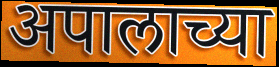
अपालाच्या